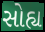
સોહ્ય